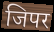
जिपर